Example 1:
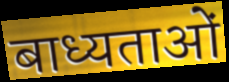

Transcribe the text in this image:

बाध्यताओं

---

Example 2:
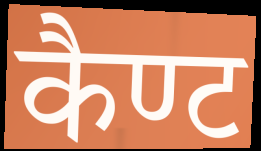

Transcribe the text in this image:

कैण्ट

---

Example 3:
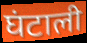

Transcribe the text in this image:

घंटाली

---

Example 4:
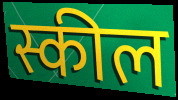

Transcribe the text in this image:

स्‍कील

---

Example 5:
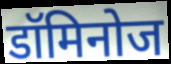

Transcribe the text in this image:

डॉमिनोज